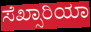
ಸೆಖ್ಸಾರಿಯಾ